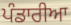
ਪੰਡਾਰੀਆ